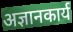
अज्ञानकार्य